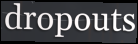
dropouts